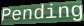
Pending